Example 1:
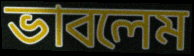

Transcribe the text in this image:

ভাবলেম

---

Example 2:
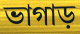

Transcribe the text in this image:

ভাগাড়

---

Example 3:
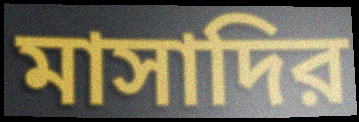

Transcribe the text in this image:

মাসাদির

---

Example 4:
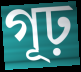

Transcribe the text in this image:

গূঢ়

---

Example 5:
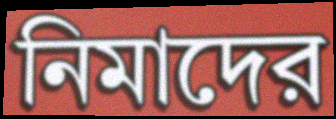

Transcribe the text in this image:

নিমাদের